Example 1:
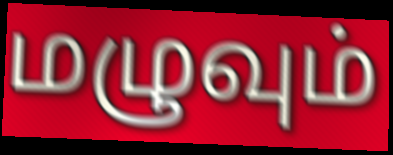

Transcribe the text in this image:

மழுவும்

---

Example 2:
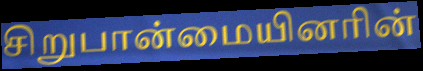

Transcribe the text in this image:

சிறுபான்மையினரின்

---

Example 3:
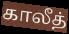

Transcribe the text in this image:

காலீத்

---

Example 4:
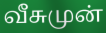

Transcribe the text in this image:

வீசுமுன்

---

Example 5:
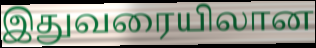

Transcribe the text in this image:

இதுவரையிலான